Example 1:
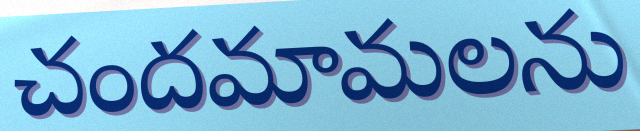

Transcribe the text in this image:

చందమామలను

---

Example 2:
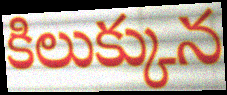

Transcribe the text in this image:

కిలుక్కున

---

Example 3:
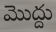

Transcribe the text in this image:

మొద్దు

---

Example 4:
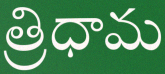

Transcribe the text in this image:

త్రిధామ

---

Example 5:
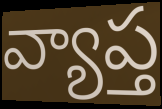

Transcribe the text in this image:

వ్యాప్త